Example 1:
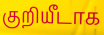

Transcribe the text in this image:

குறியீடாக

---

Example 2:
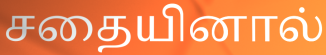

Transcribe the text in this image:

சதையினால்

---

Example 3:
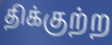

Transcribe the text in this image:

திக்குற்ற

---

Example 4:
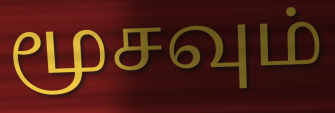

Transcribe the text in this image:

மூசவும்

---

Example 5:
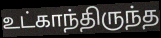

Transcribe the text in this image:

உட்காந்திருந்த